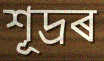
শূদ্ৰৰ